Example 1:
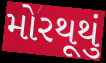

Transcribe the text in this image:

મોરથૂથું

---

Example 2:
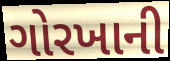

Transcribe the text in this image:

ગોરખાની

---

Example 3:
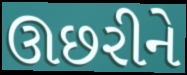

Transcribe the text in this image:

ઊછરીને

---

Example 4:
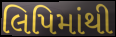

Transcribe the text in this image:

લિપિમાંથી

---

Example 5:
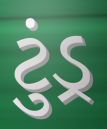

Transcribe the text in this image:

ટુંડ્ર